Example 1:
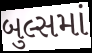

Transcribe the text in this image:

બુલ્સમાં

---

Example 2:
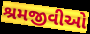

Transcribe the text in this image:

શ્રમજીવીઓ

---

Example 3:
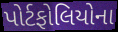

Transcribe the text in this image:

પોર્ટફોલિયોના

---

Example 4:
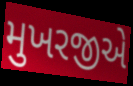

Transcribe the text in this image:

મુખરજીએ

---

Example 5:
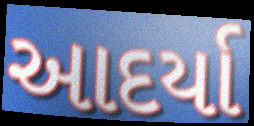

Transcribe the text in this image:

આદર્યા